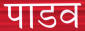
पाडव